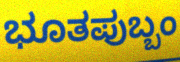
ಭೂತಪುಬ್ಬಂ